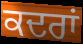
ਕਦਰਾਂ